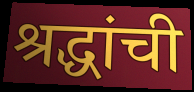
श्रद्धांची